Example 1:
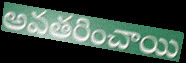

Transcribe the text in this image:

అవతరించాయి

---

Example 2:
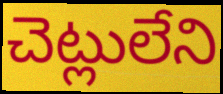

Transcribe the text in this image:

చెట్లులేని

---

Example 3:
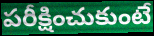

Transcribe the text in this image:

పరీక్షించుకుంటే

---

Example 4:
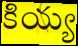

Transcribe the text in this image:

కియ్య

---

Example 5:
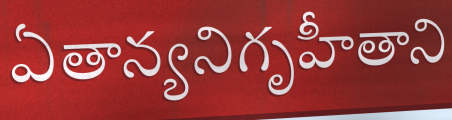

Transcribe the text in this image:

ఏతాన్యనిగృహీతాని